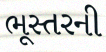
ભૂસ્તરની